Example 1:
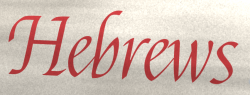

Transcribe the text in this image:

Hebrews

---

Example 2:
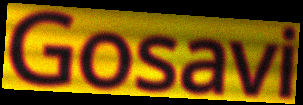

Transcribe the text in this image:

Gosavi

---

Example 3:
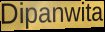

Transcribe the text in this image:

Dipanwita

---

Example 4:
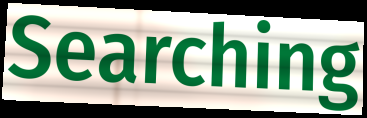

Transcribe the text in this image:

Searching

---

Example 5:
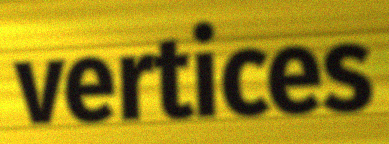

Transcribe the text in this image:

vertices